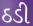
ઠડી